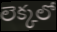
లెక్కలో